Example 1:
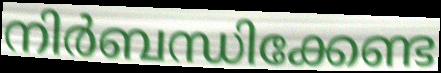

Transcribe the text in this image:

നിർബന്ധിക്കേണ്ട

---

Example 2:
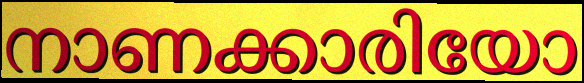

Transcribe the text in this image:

നാണക്കാരിയോ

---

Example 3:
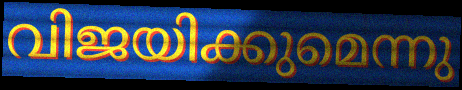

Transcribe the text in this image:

വിജയിക്കുമെന്നു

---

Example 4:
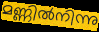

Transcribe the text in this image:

മണ്ണിൽനിന്നു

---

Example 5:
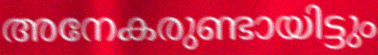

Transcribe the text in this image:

അനേകരുണ്ടായിട്ടും